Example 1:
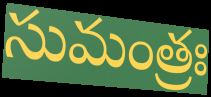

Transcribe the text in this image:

సుమంత్రః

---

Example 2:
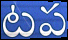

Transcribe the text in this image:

టప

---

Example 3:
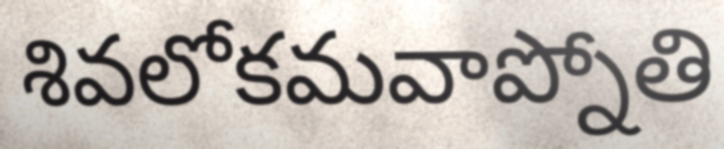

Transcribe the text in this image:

శివలోకమవాప్నోతి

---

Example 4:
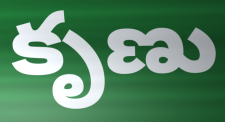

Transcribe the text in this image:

కృణు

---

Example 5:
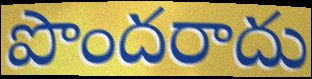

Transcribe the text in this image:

పొందరాదు